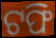
ଟଫି